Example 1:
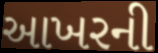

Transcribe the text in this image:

આખરની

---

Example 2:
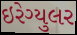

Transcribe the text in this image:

ઇરેગ્યુલર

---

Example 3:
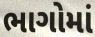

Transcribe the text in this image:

ભાગોમાં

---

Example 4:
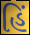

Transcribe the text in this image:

હિં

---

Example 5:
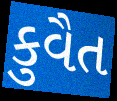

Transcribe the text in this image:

કુવૈત